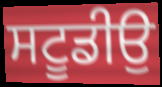
ਸਟੂਡੀਉ